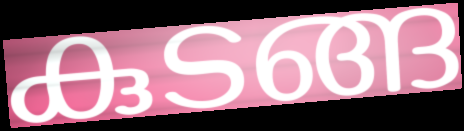
കുടങ്ങ